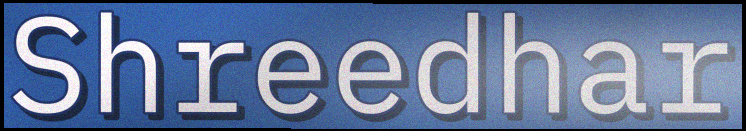
Shreedhar